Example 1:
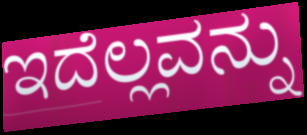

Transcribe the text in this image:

ಇದೆಲ್ಲವನ್ನು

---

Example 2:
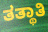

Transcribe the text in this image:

ತತ್ಥಾತಿ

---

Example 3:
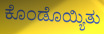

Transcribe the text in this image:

ಕೊಂಡೊಯ್ಯಿತು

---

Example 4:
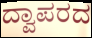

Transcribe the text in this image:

ದ್ವಾಪರದ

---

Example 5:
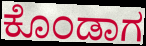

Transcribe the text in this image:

ಕೊಂಡಾಗ